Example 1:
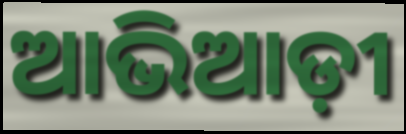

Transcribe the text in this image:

ଆଭିଆଡ଼ୀ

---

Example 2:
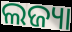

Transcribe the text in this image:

ଲଜ୍ୟା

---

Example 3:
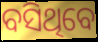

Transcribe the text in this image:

ବସିଥିବେ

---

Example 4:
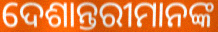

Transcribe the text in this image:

ଦେଶାନ୍ତରୀମାନଙ୍କ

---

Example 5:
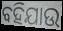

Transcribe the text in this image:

ବହିଯାଉ